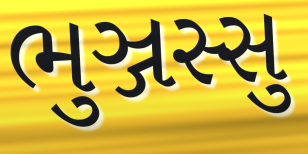
ભુઞ્જસ્સુ